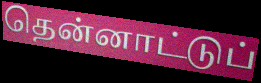
தென்னாட்டுப்